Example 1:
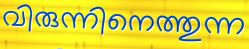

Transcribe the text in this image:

വിരുന്നിനെത്തുന്ന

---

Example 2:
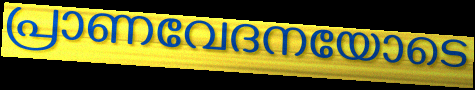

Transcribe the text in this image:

പ്രാണവേദനയോടെ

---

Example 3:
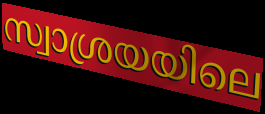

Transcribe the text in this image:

സ്വാശ്രയയിലെ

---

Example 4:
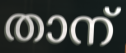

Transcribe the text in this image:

താന്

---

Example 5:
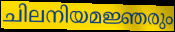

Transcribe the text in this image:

ചിലനിയമജ്ഞരും